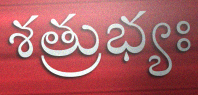
శత్రుభ్యః